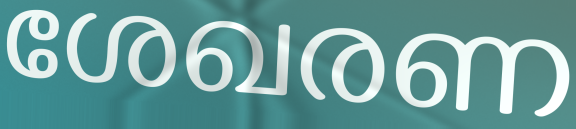
ശേഖരണ